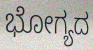
ಭೋಗ್ಯದ